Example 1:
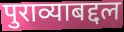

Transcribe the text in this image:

पुराव्याबद्दल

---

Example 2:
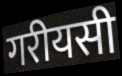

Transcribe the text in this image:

गरीयसी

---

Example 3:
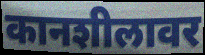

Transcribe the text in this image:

कानशीलावर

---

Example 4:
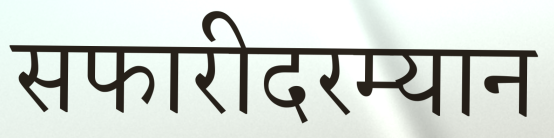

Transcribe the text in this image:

सफारीदरम्यान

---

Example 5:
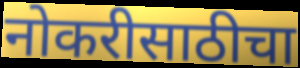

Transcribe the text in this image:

नोकरीसाठीचा